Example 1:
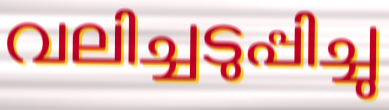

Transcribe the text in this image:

വലിച്ചടുപ്പിച്ചു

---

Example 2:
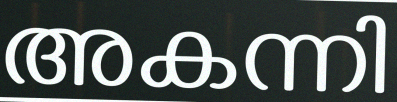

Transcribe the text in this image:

അകന്നി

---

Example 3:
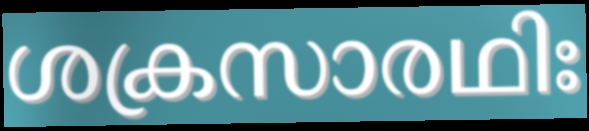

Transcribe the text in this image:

ശക്രസാരഥിഃ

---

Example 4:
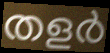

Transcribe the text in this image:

തളർ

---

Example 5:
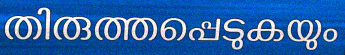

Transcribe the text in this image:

തിരുത്തപ്പെടുകയും